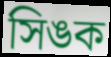
সিঙক